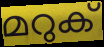
മറുക്